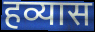
हव्यास